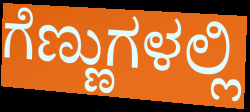
ಗೆಣ್ಣುಗಳಲ್ಲಿ